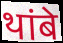
थांबे